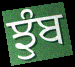
ਝੁੰਬ